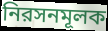
নিরসনমূলক